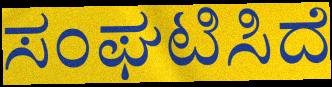
ಸಂಘಟಿಸಿದೆ